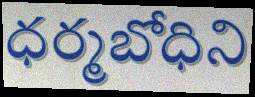
ధర్మబోధిని